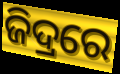
ଜିଦ୍ରରେ